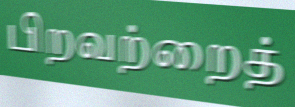
பிறவற்றைத்